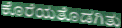
ಕೊರೆಯತೊಡಗಿತು